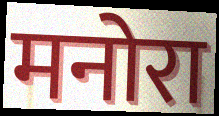
मनोरा